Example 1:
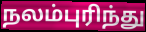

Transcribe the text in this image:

நலம்புரிந்து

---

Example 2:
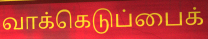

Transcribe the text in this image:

வாக்கெடுப்பைக்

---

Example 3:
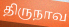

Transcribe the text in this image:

திருநாவ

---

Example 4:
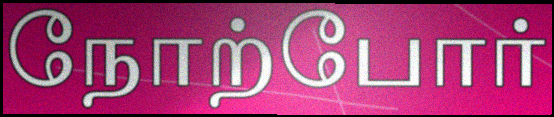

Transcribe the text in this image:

நோற்போர்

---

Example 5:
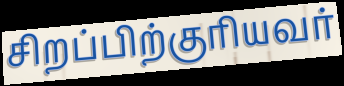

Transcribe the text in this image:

சிறப்பிற்குரியவர்